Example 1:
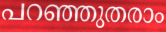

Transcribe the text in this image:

പറഞ്ഞുതരാം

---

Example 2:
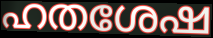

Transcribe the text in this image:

ഹതശേഷ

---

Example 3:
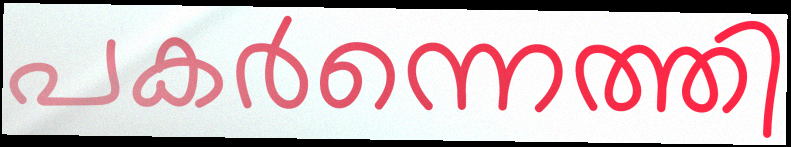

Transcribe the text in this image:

പകർന്നെത്തി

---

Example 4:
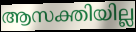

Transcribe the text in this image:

ആസക്തിയില്ല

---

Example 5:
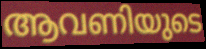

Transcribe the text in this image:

ആവണിയുടെ